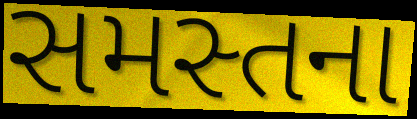
સમસ્તના